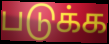
படுக்க